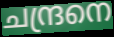
ചന്ദ്രനെ